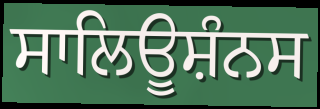
ਸਾਲਿਊਸ਼ੰਨਸ